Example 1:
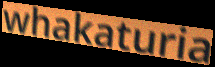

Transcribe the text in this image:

whakaturia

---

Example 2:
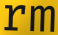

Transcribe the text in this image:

rm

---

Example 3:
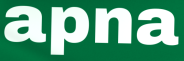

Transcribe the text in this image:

apna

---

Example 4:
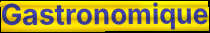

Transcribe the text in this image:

Gastronomique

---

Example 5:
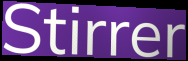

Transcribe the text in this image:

Stirrer